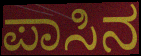
ಪಾಸಿನ